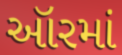
ઑરમાં